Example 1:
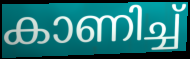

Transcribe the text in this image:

കാണിച്ച്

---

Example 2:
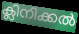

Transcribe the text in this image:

ക്ലിനിക്കൽ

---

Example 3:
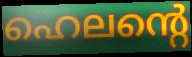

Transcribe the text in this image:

ഹെലന്റെ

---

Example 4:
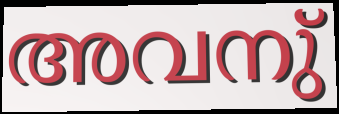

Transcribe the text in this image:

അവനു്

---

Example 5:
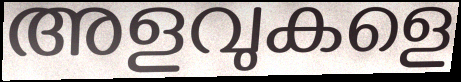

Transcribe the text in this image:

അളവുകളെ